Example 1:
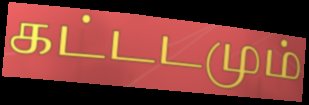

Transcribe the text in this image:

கட்டடமும்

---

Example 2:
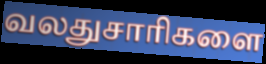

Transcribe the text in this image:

வலதுசாரிகளை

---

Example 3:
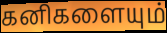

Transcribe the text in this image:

கனிகளையும்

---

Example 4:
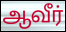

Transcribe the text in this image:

ஆவீர்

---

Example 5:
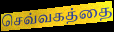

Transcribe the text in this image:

செவ்வகத்தை